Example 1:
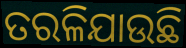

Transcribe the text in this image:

ତରଳିଯାଉଛି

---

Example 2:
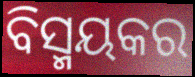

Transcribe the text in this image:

ବିସ୍ମୟକର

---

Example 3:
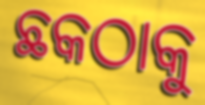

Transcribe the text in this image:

ଛକଠାକୁ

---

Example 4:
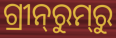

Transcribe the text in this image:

ଗ୍ରୀନ୍‌ରୁମ୍‌ରୁ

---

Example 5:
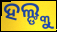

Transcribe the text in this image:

ହଲ୍ଙ୍କୁ